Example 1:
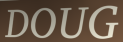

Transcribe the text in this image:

DOUG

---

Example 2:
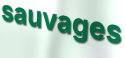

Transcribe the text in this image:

sauvages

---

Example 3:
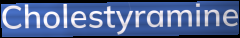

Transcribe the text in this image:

Cholestyramine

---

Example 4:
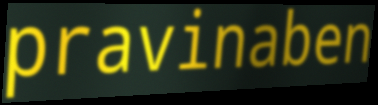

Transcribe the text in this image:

pravinaben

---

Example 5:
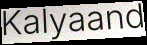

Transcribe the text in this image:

Kalyaand